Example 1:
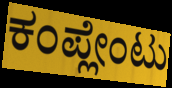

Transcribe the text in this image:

ಕಂಪ್ಲೇಂಟು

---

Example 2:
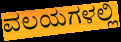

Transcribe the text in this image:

ವಲಯಗಳಲ್ಲಿ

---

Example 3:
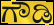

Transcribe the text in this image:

ಗೌಡಿ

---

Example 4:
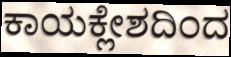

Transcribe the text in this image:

ಕಾಯಕ್ಲೇಶದಿಂದ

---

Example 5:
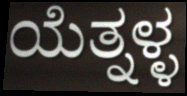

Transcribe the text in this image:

ಯೆತ್ನಳ್ಳ